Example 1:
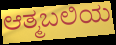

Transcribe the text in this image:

ಆತ್ಮಬಲಿಯ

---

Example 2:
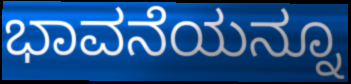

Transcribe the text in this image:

ಭಾವನೆಯನ್ನೂ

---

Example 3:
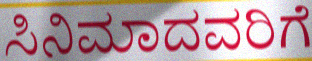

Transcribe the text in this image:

ಸಿನಿಮಾದವರಿಗೆ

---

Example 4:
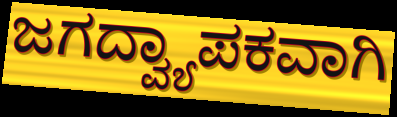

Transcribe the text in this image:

ಜಗದ್ವ್ಯಾಪಕವಾಗಿ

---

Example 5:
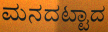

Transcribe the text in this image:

ಮನದಟ್ಟಾದ